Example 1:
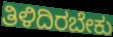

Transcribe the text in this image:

ತಿಳಿದಿರಬೇಕು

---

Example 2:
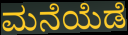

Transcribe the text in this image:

ಮನೆಯೆಡೆ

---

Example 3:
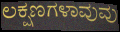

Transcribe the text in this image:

ಲಕ್ಷಣಗಳಾವುವು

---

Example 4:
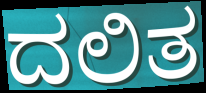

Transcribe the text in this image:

ದಲಿತ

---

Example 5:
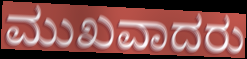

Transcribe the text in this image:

ಮುಖವಾದರು